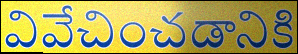
వివేచించడానికి